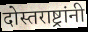
दोस्तराष्ट्रांनी